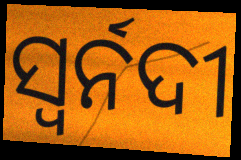
ସ୍ୱର୍ନଦୀ